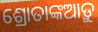
ଶ୍ରୋତାଙ୍କଆଡ଼ୁ